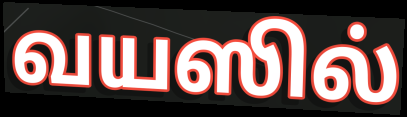
வயஸில்